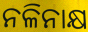
ନଳିନାକ୍ଷ